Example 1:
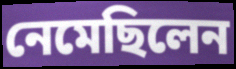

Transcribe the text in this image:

নেমেছিলেন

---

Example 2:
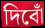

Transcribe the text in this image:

দিবোঁ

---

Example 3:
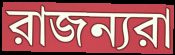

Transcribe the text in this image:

রাজন্যরা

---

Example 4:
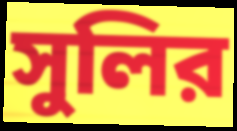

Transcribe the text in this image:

সুলির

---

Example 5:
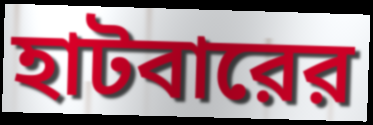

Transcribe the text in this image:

হাটবারের